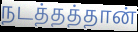
நடத்தத்தான்